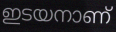
ഇടയനാണ്